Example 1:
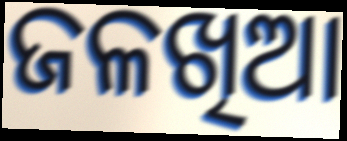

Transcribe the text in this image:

ଜଳଖିଆ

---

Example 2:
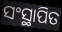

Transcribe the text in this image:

ସଂସ୍ଥାପିତ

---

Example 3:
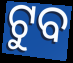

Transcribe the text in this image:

ଟୁବ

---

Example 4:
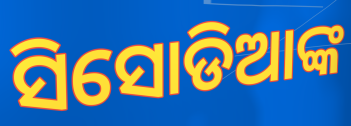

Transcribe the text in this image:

ସିସୋଡିଆଙ୍କ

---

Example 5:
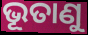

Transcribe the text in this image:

ଭୂତାଣୁ